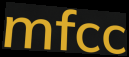
mfcc